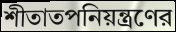
শীতাতপনিয়ন্ত্রণের